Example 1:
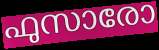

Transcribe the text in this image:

ഫുസാരോ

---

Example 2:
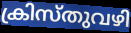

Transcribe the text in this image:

ക്രിസ്തുവഴി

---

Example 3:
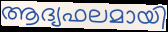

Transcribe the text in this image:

ആദ്യഫലമായി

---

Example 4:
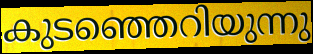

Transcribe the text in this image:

കുടഞ്ഞെറിയുന്നു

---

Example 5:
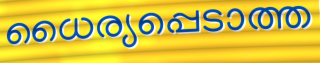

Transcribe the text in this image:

ധൈര്യപ്പെടാത്ത